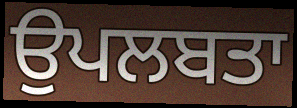
ਉਪਲਬਤਾ